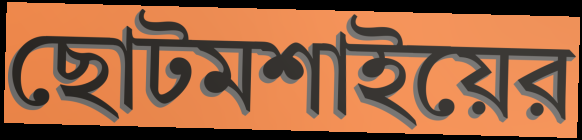
ছোটমশাইয়ের